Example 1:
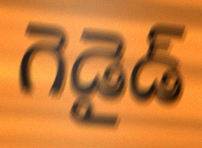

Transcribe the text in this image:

గెడైడ్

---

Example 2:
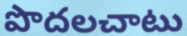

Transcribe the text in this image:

పొదలచాటు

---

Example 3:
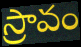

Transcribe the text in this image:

స్రావం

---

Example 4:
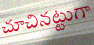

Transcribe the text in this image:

చూచినట్టుగా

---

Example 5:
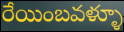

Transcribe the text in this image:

రేయింబవళ్ళూ